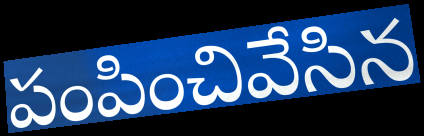
పంపించివేసిన